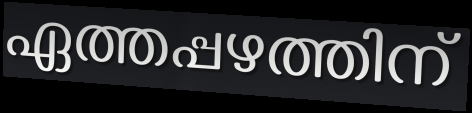
ഏത്തപ്പഴത്തിന്